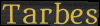
Tarbes